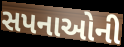
સપનાઓની